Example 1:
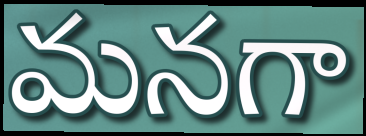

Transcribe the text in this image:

మనగా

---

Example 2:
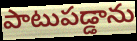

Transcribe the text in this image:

పాటుపడ్డాను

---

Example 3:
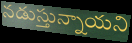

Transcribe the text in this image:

నడుస్తున్నాయని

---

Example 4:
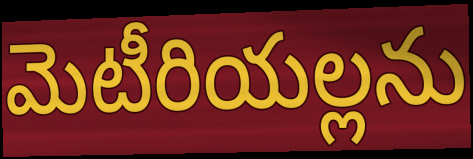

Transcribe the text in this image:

మెటీరియల్లను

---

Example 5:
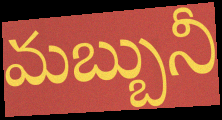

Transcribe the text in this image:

మబ్బునీ